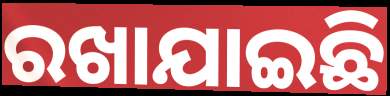
ରଖାଯାଇଛି